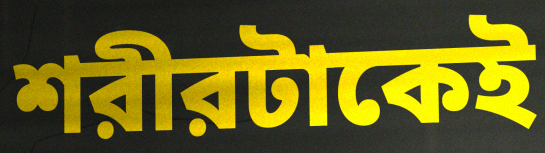
শরীরটাকেই